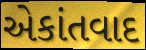
એકાંતવાદ